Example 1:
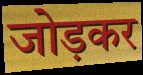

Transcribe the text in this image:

जोड़कर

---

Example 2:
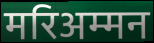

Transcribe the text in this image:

मरिअम्मन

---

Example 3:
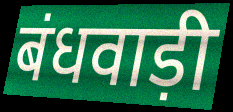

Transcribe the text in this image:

बंधवाड़ी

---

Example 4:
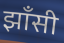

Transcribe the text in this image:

झाँसी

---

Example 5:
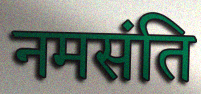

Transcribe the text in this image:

नमसंति